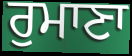
ਰੁਮਾਣਾ